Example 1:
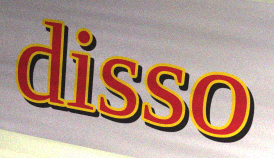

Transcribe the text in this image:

disso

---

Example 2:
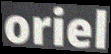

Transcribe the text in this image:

oriel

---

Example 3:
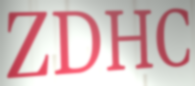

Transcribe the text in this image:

ZDHC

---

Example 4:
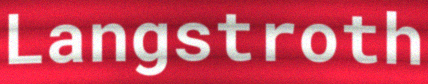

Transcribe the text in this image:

Langstroth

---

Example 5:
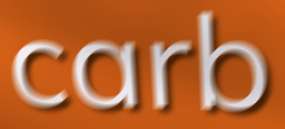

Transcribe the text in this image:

carb